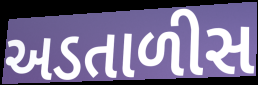
અડતાળીસ